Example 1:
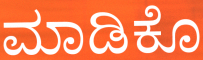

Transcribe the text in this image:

ಮಾಡಿಕೊ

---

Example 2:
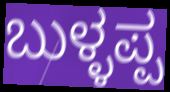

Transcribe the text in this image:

ಬುಳ್ಳಪ್ಪ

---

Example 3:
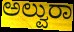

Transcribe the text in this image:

ಅಲ್ವುರಾ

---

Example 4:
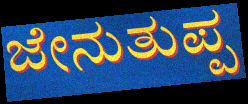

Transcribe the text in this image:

ಜೇನುತುಪ್ಪ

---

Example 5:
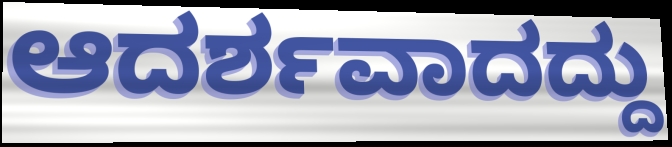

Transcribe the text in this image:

ಆದರ್ಶವಾದದ್ದು